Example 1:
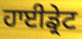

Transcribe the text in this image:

ਹਾਈਡ੍ਰੇਟ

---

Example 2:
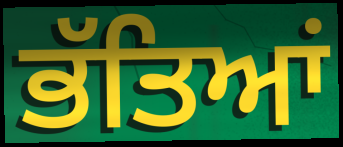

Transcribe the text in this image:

ਭੱਤਿਆਂ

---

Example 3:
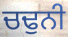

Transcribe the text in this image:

ਚਢੁਨੀ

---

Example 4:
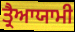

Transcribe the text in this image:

ਤ੍ਰੈਆਯਾਮੀ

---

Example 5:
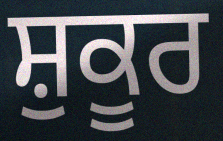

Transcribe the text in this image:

ਸ਼ੁਕੂਰ